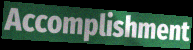
Accomplishment